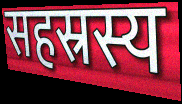
सहस्रस्य